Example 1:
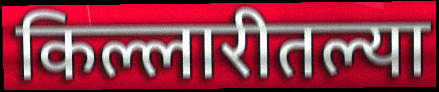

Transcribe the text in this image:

किल्लारीतल्या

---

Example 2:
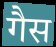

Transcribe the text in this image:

गैस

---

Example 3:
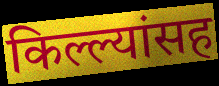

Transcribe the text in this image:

किल्ल्यांसह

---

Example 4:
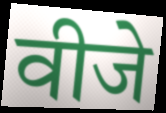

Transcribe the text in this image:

वीजे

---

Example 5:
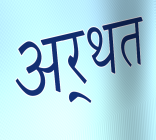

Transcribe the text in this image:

अर्थत